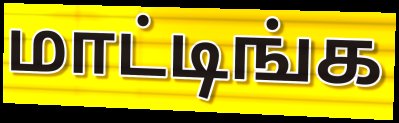
மாட்டிங்க